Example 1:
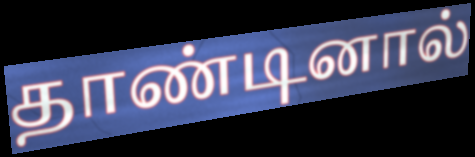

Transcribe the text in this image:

தாண்டினால்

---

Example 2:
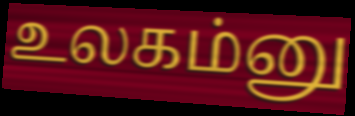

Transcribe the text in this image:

உலகம்னு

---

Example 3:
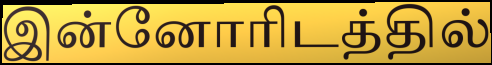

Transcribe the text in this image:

இன்னோரிடத்தில்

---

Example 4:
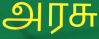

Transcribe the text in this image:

அரசு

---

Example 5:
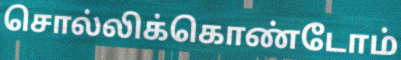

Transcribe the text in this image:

சொல்லிக்கொண்டோம்